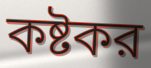
কষ্টকর